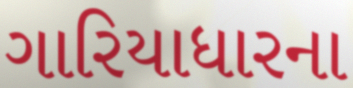
ગારિયાધારના